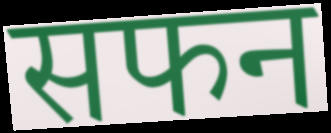
सफन